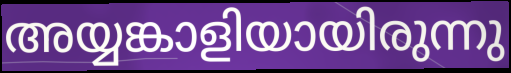
അയ്യങ്കാളിയായിരുന്നു